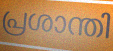
പ്രശാന്തി